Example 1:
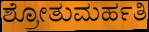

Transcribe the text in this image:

ಶ್ರೋತುಮರ್ಹತಿ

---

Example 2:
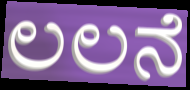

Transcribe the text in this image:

ಲಲನೆ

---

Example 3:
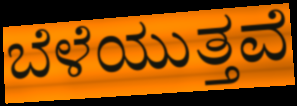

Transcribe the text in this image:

ಬೆಳೆಯುತ್ತವೆ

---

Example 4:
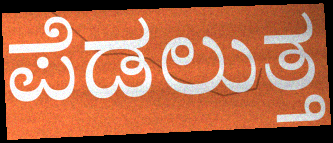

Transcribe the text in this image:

ಪೆಡಲುತ್ತ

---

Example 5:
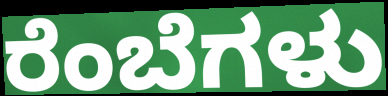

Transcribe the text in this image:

ರೆಂಬೆಗಳು